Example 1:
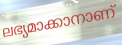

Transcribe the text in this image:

ലഭ്യമാക്കാനാണ്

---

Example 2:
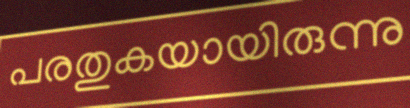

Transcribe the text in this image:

പരതുകയായിരുന്നു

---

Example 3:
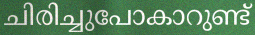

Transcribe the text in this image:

ചിരിച്ചുപോകാറുണ്ട്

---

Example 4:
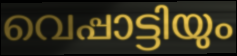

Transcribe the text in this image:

വെപ്പാട്ടിയും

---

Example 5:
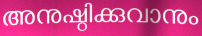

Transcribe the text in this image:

അനുഷ്ഠിക്കുവാനും